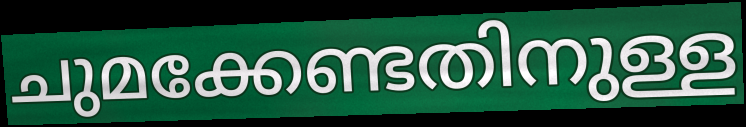
ചുമക്കേണ്ടതിനുള്ള